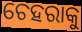
ଚେହରାକୁ